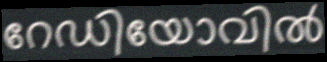
റേഡിയോവിൽ